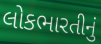
લોકભારતીનું